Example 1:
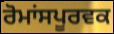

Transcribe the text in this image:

ਰੋਮਾਂਸਪੂਰਵਕ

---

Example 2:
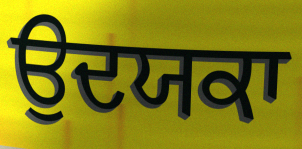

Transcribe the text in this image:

ਉਦਯਕਾ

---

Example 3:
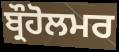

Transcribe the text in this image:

ਬ੍ਰੌਹੋਲਮਰ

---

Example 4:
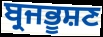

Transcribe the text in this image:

ਬ੍ਰਜਭੂਸ਼ਣ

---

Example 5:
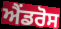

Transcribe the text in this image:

ਐਂਡਰੋਸ